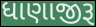
ધાણાજીરૂ